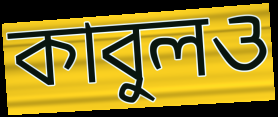
কাবুলও